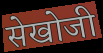
सेखोजी